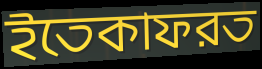
ইতেকাফরত